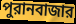
পুরানবাজার